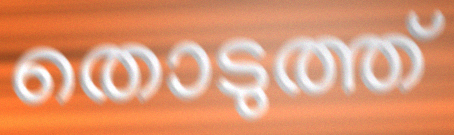
തൊടുത്ത്